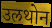
उलथोन